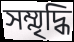
সম্মৃদ্ধি